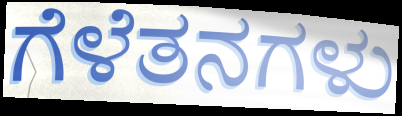
ಗೆಳೆತನಗಳು